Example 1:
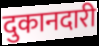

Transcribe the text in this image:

दुकानदारी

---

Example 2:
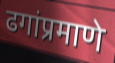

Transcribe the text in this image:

ढगांप्रमाणे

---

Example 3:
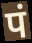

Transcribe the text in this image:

पं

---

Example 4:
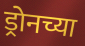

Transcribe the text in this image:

ड्रोनच्या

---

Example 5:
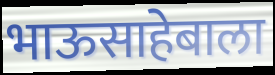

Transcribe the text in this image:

भाऊसाहेबाला